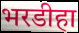
भरडीहा